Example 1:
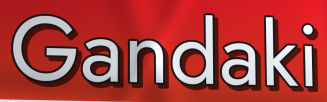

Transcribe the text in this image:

Gandaki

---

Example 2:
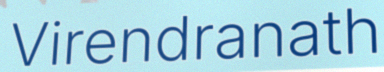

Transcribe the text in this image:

Virendranath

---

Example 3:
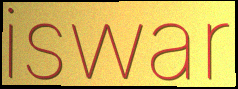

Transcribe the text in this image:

iswar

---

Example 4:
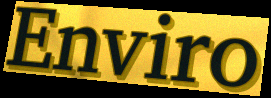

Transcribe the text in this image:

Enviro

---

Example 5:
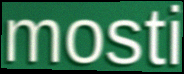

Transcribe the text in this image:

mosti